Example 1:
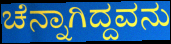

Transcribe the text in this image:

ಚೆನ್ನಾಗಿದ್ದವನು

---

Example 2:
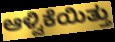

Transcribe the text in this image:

ಆಳ್ವಿಕೆಯಿತ್ತು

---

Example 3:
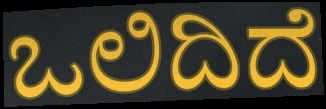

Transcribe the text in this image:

ಒಲಿದಿದೆ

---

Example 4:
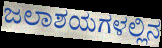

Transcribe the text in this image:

ಜಲಾಶಯಗಳಲ್ಲಿನ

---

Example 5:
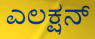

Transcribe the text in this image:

ಎಲಕ್ಷನ್